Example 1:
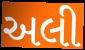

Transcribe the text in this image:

અલી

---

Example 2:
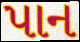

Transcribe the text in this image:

પાન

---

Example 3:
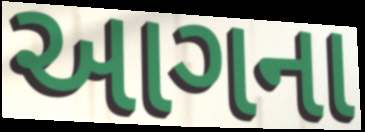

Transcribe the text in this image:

આગના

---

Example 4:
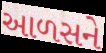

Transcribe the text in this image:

આળસને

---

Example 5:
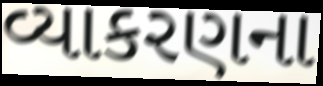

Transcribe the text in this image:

વ્યાકરણના